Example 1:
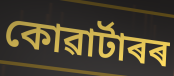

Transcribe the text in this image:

কোৱাৰ্টাৰৰ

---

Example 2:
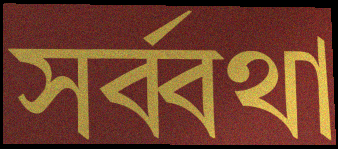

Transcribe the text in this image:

সৰ্ব্বথা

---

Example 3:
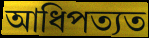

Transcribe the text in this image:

আধিপত্যত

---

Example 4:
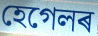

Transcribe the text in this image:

হেগেলৰ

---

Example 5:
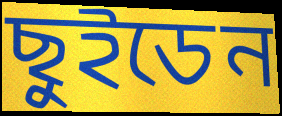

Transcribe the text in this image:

ছুইডেন